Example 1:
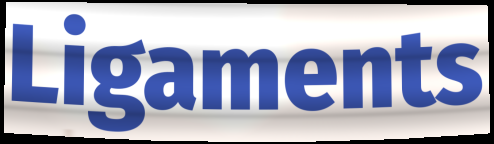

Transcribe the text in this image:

Ligaments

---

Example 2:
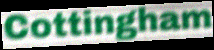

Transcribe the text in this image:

Cottingham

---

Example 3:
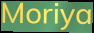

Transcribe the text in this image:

Moriya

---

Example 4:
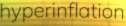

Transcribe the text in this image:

hyperinflation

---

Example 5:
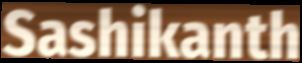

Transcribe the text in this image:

Sashikanth